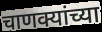
चाणक्यांच्या